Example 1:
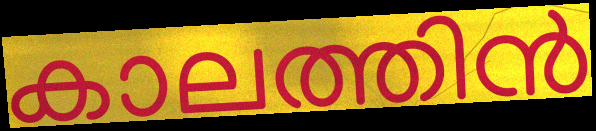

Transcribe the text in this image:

കാലത്തിൻ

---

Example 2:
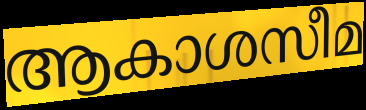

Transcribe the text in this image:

ആകാശസീമ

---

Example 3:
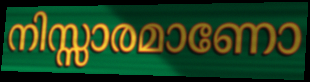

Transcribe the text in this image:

നിസ്സാരമാണോ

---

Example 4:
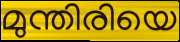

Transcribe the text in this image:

മുന്തിരിയെ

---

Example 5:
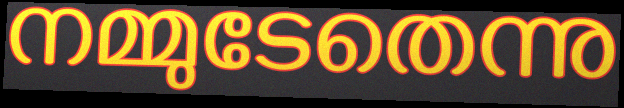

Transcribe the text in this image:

നമ്മുടേതെന്നു